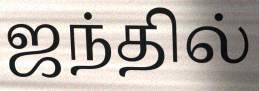
ஜந்தில்